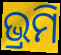
ଭ୍ରମି